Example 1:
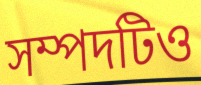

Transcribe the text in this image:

সম্পদটিও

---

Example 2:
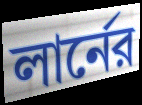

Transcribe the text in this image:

লার্নের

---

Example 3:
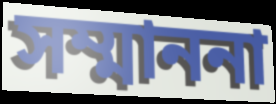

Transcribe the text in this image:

সম্মাননা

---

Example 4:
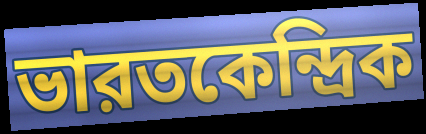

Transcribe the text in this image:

ভারতকেন্দ্রিক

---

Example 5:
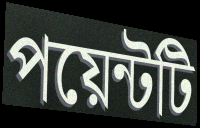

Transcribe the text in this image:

পয়েন্টটি